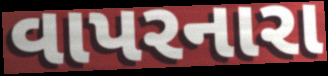
વાપરનારા